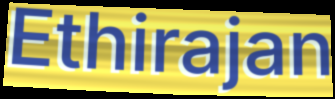
Ethirajan